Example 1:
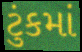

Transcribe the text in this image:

ટુંકમાં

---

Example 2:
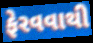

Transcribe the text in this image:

ફેરવવાથી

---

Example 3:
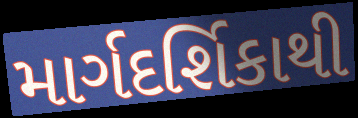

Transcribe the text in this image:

માર્ગદર્શિકાથી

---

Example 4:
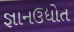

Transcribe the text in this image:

જ્ઞાનઉદ્યોત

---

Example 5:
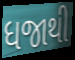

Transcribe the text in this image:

ધજાથી